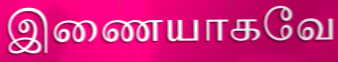
இணையாகவே